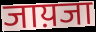
जाय़जा